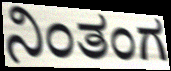
ನಿಂತಂಗ